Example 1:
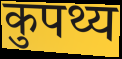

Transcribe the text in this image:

कुपथ्य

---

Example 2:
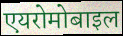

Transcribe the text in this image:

एयरोमोबाइल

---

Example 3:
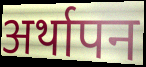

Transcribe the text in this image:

अर्थापन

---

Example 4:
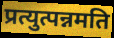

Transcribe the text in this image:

प्रत्युत्पन्नमति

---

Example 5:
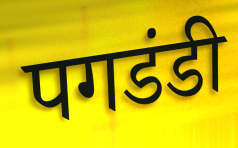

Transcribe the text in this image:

पगडंडी